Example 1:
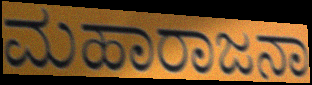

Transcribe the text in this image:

ಮಹಾರಾಜನಾ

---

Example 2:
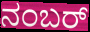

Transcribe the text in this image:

ನಂಬರ್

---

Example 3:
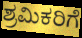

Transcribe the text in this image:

ಶ್ರಮಿಕರಿಗೆ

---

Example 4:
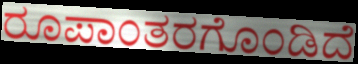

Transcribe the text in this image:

ರೂಪಾಂತರಗೊಂಡಿದೆ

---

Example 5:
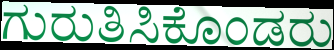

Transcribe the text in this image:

ಗುರುತಿಸಿಕೊಂಡರು